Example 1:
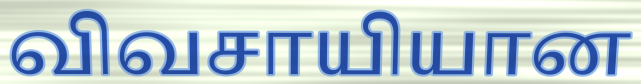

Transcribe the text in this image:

விவசாயியான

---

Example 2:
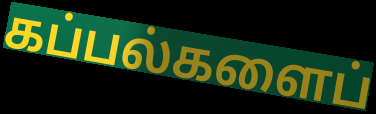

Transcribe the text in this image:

கப்பல்களைப்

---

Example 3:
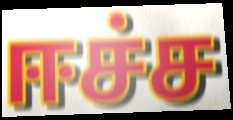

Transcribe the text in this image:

ஈச்ச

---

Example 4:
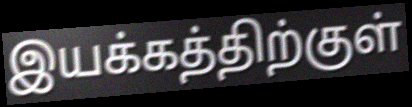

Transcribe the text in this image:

இயக்கத்திற்குள்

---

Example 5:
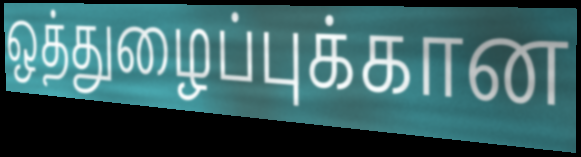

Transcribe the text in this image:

ஒத்துழைப்புக்கான